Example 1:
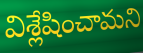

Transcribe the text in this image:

విశ్లేషించామని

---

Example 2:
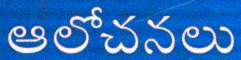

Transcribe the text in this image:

ఆలోచనలు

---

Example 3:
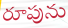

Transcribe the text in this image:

రూపును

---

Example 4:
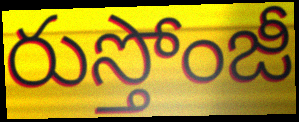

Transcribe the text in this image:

రుస్తోంజీ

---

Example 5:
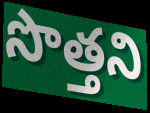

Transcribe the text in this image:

సొత్తని